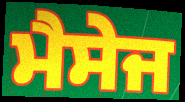
ਮੈਸੇਜ